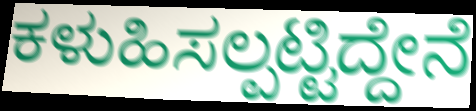
ಕಳುಹಿಸಲ್ಪಟ್ಟಿದ್ದೇನೆ